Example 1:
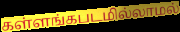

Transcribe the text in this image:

கள்ளங்கபடமில்லாமல்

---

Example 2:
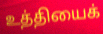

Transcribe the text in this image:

உத்தியைக்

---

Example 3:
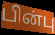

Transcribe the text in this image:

பின்பு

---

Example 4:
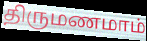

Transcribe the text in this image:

திருமணமாம்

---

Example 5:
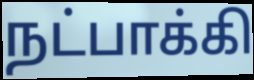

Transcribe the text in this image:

நட்பாக்கி